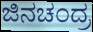
ಜಿನಚಂದ್ರ